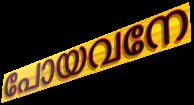
പോയവനേ